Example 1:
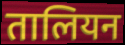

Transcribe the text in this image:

तालियन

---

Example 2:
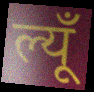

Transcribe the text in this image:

ल्यूँ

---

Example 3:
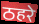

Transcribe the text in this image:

ठहरे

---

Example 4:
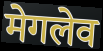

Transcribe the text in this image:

मेगलेव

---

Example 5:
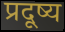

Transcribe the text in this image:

प्रदूष्य